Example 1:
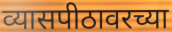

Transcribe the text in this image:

व्यासपीठावरच्या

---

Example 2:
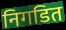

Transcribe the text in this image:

निगडित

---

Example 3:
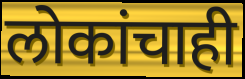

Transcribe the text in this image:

लोकांचाही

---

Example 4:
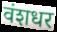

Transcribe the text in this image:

वंशधर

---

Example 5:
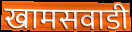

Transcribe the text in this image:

खामसवाडी